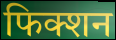
फिक्शन